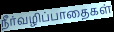
நீர்வழிப்பாதைகள்